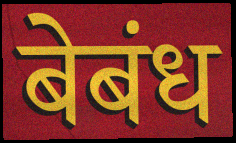
बेबंध